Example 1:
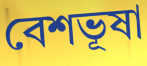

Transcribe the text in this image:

বেশভূষা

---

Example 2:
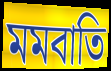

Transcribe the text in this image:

মমবাতি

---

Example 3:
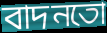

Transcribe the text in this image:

বাদনতো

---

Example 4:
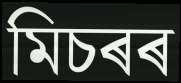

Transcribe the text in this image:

মিচৰৰ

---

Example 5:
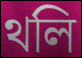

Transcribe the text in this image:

থলি